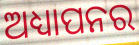
ଅଧ୍ୟାପନର